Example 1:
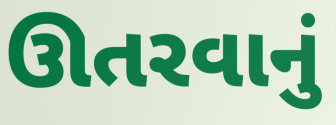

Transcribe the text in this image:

ઊતરવાનું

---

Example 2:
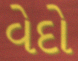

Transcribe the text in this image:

વેદો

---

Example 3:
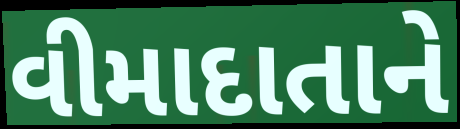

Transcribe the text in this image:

વીમાદાતાને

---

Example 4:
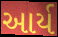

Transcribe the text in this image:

આર્ય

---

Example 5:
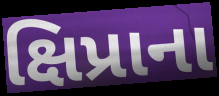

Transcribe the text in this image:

ક્ષિપ્રાના